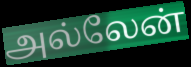
அல்லேன்